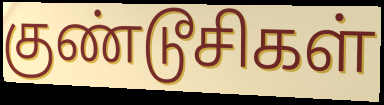
குண்டூசிகள்